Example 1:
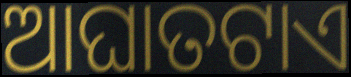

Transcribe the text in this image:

ଆଘାତଟାଏ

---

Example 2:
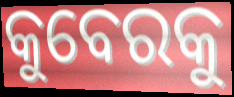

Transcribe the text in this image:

କୁବେରକୁ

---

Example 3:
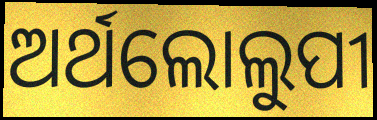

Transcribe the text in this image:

ଅର୍ଥଲୋଲୁପୀ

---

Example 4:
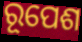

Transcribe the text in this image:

ରୂପେଶ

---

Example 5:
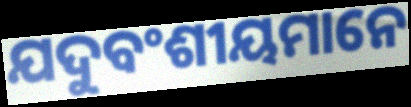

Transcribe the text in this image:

ଯଦୁବଂଶୀୟମାନେ